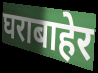
घराबाहेर